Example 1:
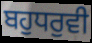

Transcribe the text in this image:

ਬਹੁਧਰੁਵੀ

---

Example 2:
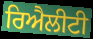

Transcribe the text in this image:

ਰਿਐਲੀਟੀ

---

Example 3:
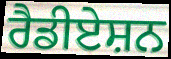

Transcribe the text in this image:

ਰੈਡੀਏਸ਼ਨ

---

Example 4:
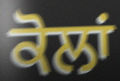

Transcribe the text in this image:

ਕੋਲਾਂ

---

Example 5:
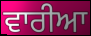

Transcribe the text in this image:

ਵਾਰੀਆ